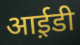
आई़डी